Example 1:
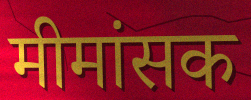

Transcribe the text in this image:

मीमांसक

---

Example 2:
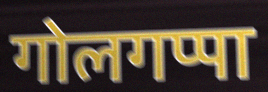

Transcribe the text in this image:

गोलगप्पा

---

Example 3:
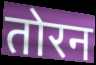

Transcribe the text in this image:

तोरन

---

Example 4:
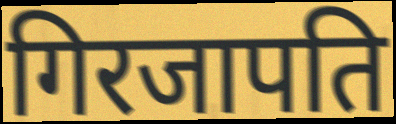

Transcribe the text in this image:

गिरजापति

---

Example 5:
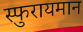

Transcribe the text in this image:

स्फुरायमान